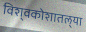
विश्वकोशातल्या